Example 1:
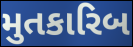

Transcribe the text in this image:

મુતકારિબ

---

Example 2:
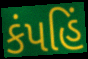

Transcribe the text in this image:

કંપહિં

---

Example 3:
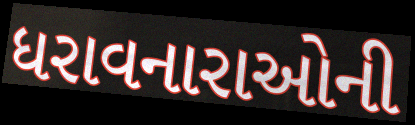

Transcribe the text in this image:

ધરાવનારાઓની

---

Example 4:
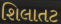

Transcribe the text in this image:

શિલાતટ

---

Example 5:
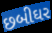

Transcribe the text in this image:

છબીઘર